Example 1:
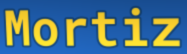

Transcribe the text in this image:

Mortiz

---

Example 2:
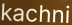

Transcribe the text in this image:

kachni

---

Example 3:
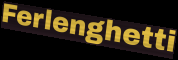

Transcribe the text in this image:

Ferlenghetti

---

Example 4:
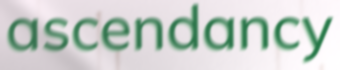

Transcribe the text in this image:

ascendancy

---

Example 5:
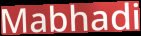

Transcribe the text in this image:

Mabhadi